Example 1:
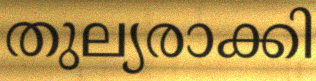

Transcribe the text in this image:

തുല്യരാക്കി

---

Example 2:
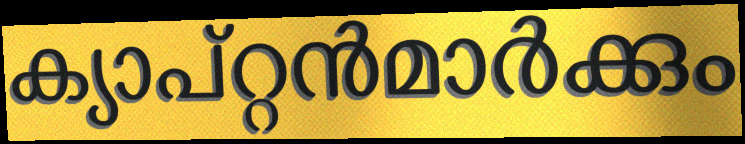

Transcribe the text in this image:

ക്യാപ്റ്റൻമാർക്കും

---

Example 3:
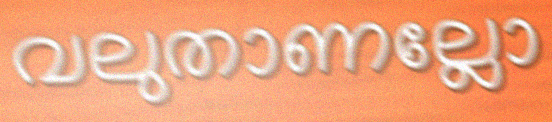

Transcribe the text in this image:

വലുതാണല്ലോ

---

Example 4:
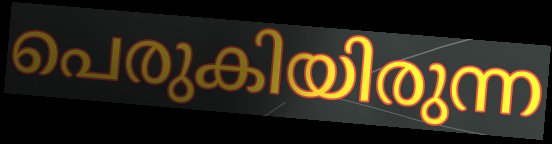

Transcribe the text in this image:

പെരുകിയിരുന്ന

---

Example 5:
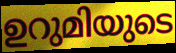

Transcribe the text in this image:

ഉറുമിയുടെ